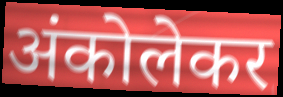
अंकोलेकर